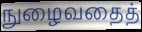
நுழைவதைத்